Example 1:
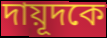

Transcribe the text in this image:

দায়ূদকে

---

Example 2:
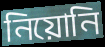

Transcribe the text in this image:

নিয়োনি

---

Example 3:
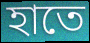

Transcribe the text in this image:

হাতে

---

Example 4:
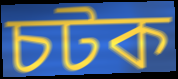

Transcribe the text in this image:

চটক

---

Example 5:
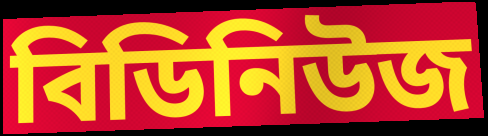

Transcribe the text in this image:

বিডিনিউজ